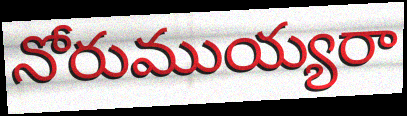
నోరుముయ్యరా